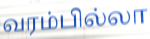
வரம்பில்லா